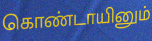
கொண்டாயினும்